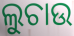
ଲୁଚାଉ